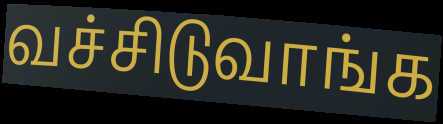
வச்சிடுவாங்க